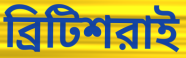
ব্রিটিশরাই